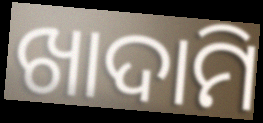
ଖାଦାମି